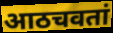
आठचवतां